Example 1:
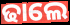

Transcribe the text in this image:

ଢାଲେ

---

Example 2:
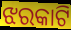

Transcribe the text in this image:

ଝରକାଟି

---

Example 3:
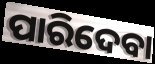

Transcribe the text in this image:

ପାରିଦେବା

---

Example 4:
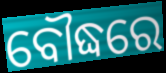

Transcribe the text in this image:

ବୌଦ୍ଧରେ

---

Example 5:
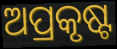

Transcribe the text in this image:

ଅପ୍ରକୃଷ୍ଟ